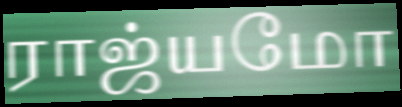
ராஜ்யமோ